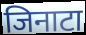
जिनाटा